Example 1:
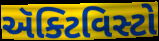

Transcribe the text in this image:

ઍક્ટિવિસ્ટો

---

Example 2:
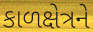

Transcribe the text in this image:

કાળક્ષેત્રને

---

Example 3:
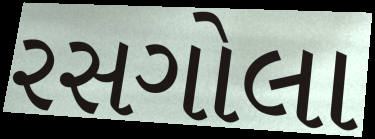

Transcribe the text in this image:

રસગોલા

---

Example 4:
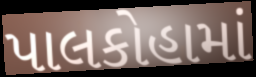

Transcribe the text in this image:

પાલકોહામાં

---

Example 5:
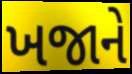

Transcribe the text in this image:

ખજાને